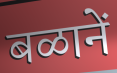
बळानें